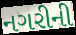
નગરીની